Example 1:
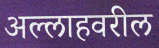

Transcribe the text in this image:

अल्लाहवरील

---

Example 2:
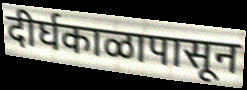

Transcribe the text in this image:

दीर्घकाळापासून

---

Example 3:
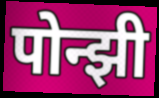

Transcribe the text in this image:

पोन्झी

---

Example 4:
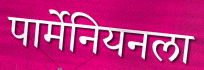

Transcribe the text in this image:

पार्मेनियनला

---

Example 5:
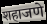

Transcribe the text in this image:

शहाजणे